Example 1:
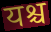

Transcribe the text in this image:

यश्च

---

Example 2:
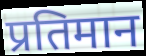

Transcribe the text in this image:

प्रतिमान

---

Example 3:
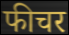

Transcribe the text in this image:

फीचर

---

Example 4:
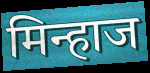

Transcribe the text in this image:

मिन्हाज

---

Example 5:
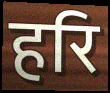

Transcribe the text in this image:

हरि